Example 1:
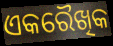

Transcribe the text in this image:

ଏକରୈଖିକ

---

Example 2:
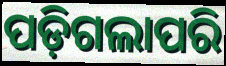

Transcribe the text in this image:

ପଡ଼ିଗଲାପରି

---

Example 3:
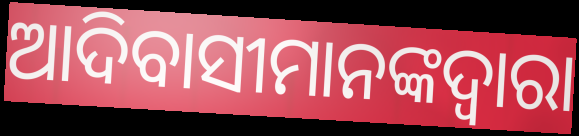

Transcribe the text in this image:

ଆଦିବାସୀମାନଙ୍କଦ୍ୱାରା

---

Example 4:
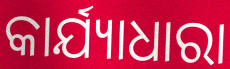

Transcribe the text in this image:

କାର୍ଯ୍ୟାଧାରା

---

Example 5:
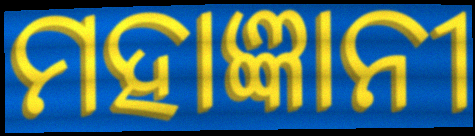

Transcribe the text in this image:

ମହାଜ୍ଞାନୀ